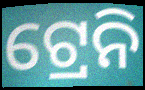
ଟ୍ରେନି